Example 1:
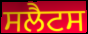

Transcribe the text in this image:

ਸਲੈਟਸ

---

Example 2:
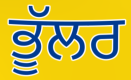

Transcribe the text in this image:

ਭੂੱਲਰ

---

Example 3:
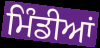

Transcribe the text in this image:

ਮਿੰਡੀਆਂ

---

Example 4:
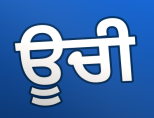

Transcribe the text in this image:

ਊਚੀ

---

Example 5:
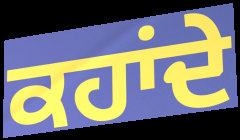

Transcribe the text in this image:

ਕਹਾਂਦੇ